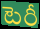
టెరీ